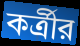
কর্ত্রীর